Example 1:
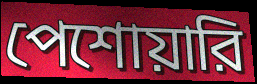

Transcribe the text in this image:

পেশোয়ারি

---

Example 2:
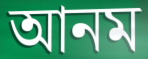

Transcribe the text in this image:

আনম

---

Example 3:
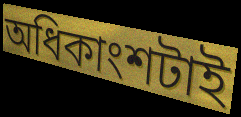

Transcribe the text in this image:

অধিকাংশটাই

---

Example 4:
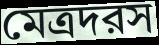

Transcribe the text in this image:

মেত্রদরস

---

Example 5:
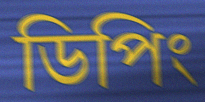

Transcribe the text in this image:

ডিপিং